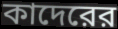
কাদেরের